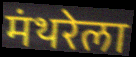
मंथरेला